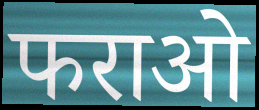
फराओ